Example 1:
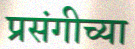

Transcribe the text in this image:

प्रसंगीच्या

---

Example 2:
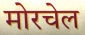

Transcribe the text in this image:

मोरचेल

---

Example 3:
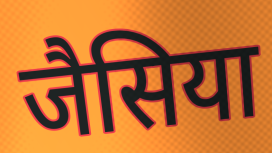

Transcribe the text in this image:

जैसिया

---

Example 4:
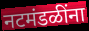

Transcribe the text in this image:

नटमंडळींना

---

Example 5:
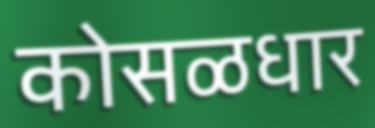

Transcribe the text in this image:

कोसळधार